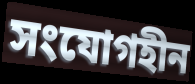
সংযোগহীন